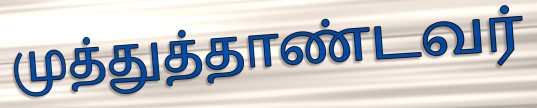
முத்துத்தாண்டவர்